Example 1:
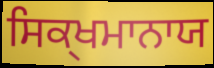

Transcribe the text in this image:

ਸਿਕ੍ਖਮਾਨਾਯ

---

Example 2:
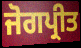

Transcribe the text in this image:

ਜੋਗਪ੍ਰੀਤ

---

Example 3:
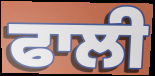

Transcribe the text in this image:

ਫਾਲੀ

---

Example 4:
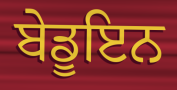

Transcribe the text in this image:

ਬੇਡੂਇਨ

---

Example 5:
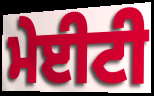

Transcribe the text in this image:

ਮੇਈਟੀ